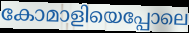
കോമാളിയെപ്പോലെ